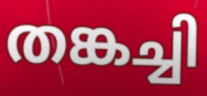
തങ്കച്ചി